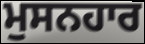
ਮੁਸਨਹਾਰ